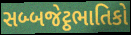
સબ્બજેટ્ઠભાતિકો